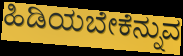
ಹಿಡಿಯಬೇಕೆನ್ನುವ